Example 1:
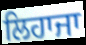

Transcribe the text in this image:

ਲਿਹਾਜਾ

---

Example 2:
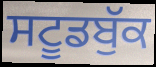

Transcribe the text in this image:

ਸਟੂਡਬੁੱਕ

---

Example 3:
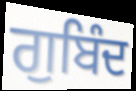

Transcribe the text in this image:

ਗੁਬਿੰਦ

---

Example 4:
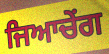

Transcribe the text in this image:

ਜਿਆਚੇਂਗ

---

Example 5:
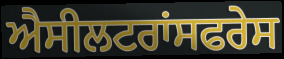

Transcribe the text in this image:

ਐਸੀਲਟਰਾਂਸਫਰੇਸ